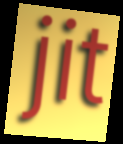
jit